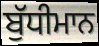
ਬੁੱਧੀਮਾਨ